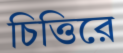
চিত্তিরে